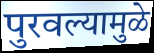
पुरवल्यामुळे